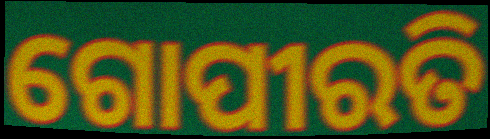
ଗୋପୀରତି